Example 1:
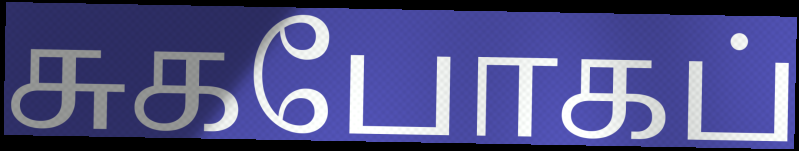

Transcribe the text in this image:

சுகபோகப்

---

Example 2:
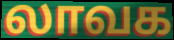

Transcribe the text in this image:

லாவக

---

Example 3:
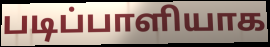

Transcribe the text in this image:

படிப்பாளியாக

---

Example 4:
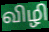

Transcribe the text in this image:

விழி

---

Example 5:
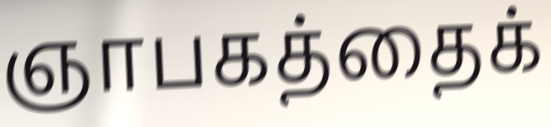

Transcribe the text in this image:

ஞாபகத்தைக்